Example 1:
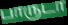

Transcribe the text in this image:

பாருடா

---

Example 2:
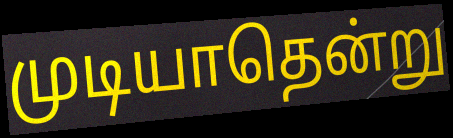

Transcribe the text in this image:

முடியாதென்று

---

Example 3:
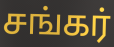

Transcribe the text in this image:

சங்கர்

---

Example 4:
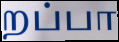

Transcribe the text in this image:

றப்பா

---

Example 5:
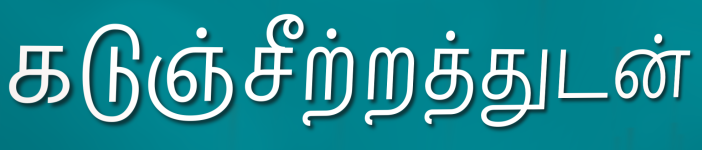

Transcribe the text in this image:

கடுஞ்சீற்றத்துடன்